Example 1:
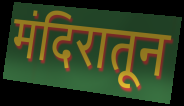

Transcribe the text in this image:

मंदिरातून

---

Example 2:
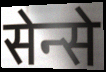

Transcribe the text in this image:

सेन्से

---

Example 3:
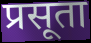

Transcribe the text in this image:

प्रसूता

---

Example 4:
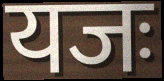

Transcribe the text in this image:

यजः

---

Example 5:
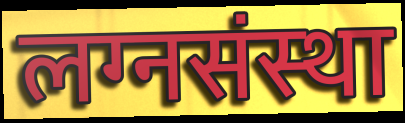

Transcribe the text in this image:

लग्नसंस्था